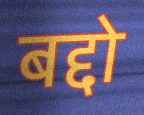
बद्दो